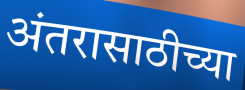
अंतरासाठीच्या